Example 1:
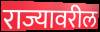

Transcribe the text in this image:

राज्यावरील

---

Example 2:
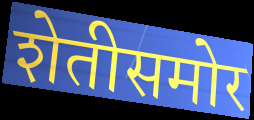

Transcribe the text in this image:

शेतीसमोर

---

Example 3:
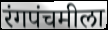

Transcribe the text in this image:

रंगपंचमीला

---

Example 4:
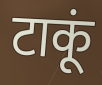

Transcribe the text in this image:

टाकूं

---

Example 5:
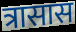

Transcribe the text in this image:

त्रासास